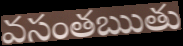
వసంతఋతు